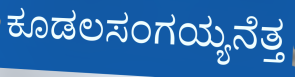
ಕೂಡಲಸಂಗಯ್ಯನೆತ್ತ